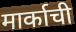
मार्काची